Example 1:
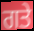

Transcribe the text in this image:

ਗਤੇ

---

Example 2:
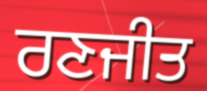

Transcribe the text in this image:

ਰਣਜੀਤ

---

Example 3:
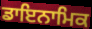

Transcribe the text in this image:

ਡਾਇਨਾਮਿਕ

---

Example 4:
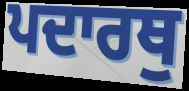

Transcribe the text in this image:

ਪਦਾਰਥੁ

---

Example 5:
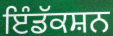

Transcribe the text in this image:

ਇੰਡੱਕਸ਼ਨ